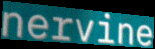
nervine